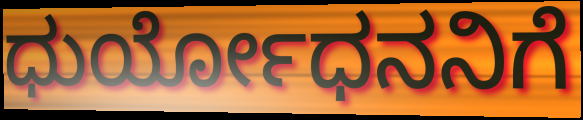
ಧುರ್ಯೋಧನನಿಗೆ